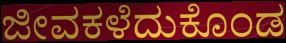
ಜೀವಕಳೆದುಕೊಂಡ